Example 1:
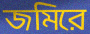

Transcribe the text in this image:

জমিরে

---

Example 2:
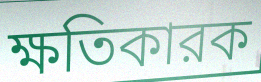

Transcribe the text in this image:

ক্ষতিকারক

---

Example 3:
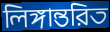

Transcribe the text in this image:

লিঙ্গান্তরিত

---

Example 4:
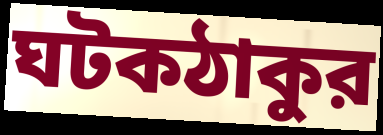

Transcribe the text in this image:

ঘটকঠাকুর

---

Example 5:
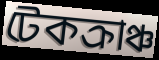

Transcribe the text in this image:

টেকক্রাঞ্চ